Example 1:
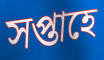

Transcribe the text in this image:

সপ্তাহে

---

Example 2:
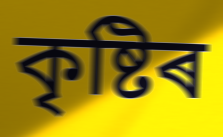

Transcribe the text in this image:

কৃষ্টিৰ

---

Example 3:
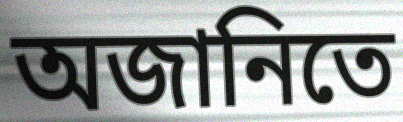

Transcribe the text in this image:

অজানিতে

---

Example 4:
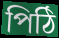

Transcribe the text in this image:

পিঠি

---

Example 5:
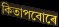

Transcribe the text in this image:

কিতাপবোৰে